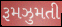
રૂમઝુમતી